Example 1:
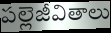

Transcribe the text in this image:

పల్లెజీవితాలు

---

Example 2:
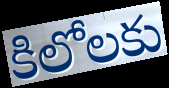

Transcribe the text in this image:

కిలోలకు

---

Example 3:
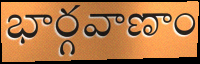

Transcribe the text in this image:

భార్గవాణాం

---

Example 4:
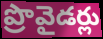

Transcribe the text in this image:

ప్రొవైడర్లు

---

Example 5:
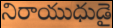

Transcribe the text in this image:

నిరాయుధుడై